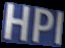
HPI